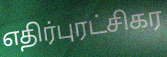
எதிர்புரட்சிகர